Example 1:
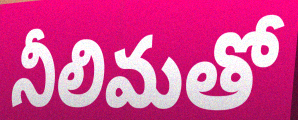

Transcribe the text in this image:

నీలిమతో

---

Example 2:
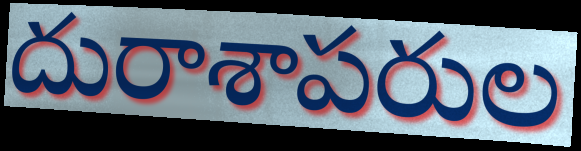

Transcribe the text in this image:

దురాశాపరుల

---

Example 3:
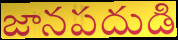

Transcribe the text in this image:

జానపదుడి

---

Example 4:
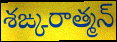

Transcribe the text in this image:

శఙ్కరాత్మన్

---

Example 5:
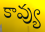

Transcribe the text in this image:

కావ్యు